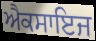
ਐਕਸਾਇਜ